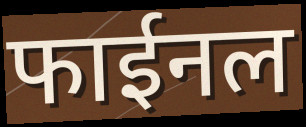
फाईनल